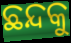
ଛନ୍ଦକୁ